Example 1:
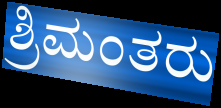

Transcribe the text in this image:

ಶ್ರಿಮಂತರು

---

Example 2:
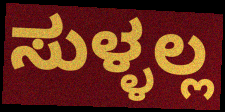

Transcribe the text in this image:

ಸುಳ್ಳಲ್ಲ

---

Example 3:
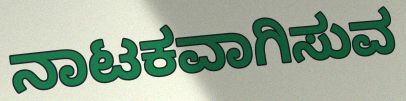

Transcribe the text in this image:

ನಾಟಕವಾಗಿಸುವ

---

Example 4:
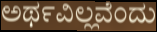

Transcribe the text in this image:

ಅರ್ಥವಿಲ್ಲವೆಂದು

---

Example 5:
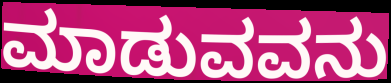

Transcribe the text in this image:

ಮಾಡುವವನು